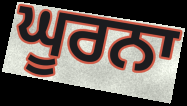
ਘੂਰਨਾ